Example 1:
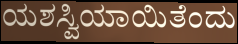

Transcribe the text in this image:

ಯಶಸ್ವಿಯಾಯಿತೆಂದು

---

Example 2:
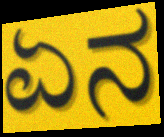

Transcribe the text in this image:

ಏನ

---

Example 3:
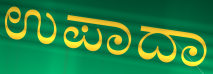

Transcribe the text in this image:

ಉಪಾದಾ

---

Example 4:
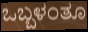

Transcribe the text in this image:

ಒಬ್ಬಳಂತೂ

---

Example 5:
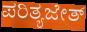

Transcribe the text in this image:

ಪರಿತ್ಯಜೇತ್